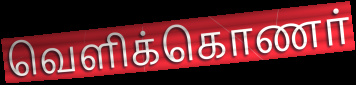
வெளிக்கொணர்